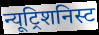
न्‍यूट्रिशनिस्‍ट